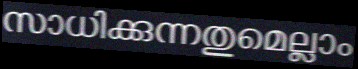
സാധിക്കുന്നതുമെല്ലാം